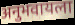
अनुभवायला